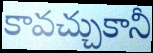
కావచ్చుకానీ